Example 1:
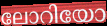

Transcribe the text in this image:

ലോറിയോ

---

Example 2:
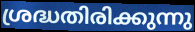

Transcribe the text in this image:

ശ്രദ്ധതിരിക്കുന്നു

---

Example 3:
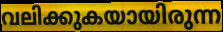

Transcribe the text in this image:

വലിക്കുകയായിരുന്ന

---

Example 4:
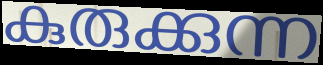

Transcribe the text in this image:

കുരുക്കുന്ന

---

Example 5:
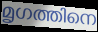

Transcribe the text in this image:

മൃഗത്തിനെ